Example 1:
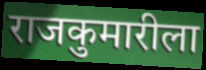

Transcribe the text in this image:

राजकुमारीला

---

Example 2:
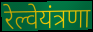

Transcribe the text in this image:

रेल्वेयंत्रणा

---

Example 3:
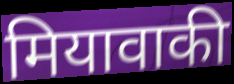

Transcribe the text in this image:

मियावाकी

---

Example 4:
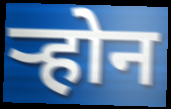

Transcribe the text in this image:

र्‍होन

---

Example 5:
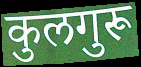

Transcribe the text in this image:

कुलगुरू